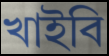
খাইবি